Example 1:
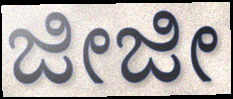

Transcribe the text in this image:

ಜೀಜೀ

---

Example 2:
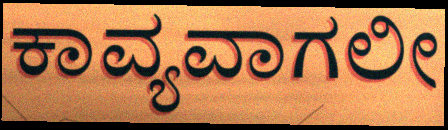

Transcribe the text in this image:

ಕಾವ್ಯವಾಗಲೀ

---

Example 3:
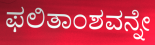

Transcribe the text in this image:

ಫಲಿತಾಂಶವನ್ನೇ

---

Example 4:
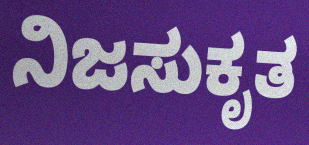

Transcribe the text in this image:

ನಿಜಸುಕೃತ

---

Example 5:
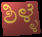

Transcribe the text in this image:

ಶಿಳ್ಳೆ